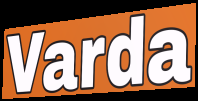
Varda